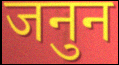
जनुन